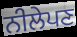
ਨੀਲੇਪਣ